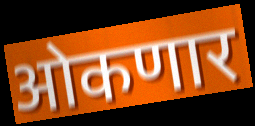
ओकणार